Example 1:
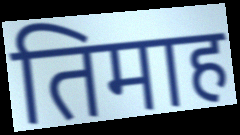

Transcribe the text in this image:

तिमाह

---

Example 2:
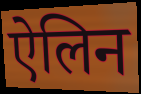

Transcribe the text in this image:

ऐलिन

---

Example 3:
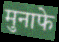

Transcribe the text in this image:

मुनाफे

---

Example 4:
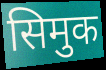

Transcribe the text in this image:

सिमुक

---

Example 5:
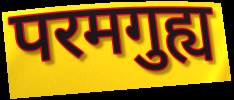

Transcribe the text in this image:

परमगुह्य